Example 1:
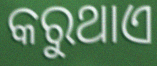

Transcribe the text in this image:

କରୁଥାଏ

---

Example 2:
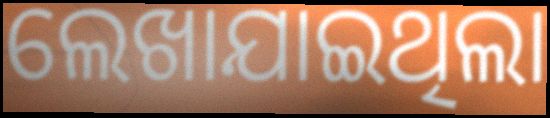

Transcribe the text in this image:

ଲେଖାଯାଇଥିଲା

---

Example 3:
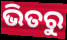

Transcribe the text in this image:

ଭିତରୁ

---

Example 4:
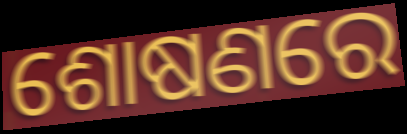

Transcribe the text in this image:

ଶୋଷଣରେ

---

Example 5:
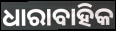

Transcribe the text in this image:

ଧାରାବାହିକ